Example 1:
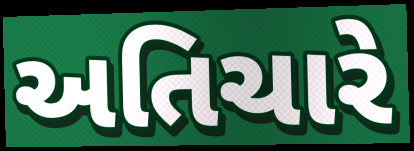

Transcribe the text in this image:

અતિચારે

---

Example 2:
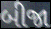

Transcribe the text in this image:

બીજા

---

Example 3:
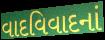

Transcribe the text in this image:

વાદવિવાદનાં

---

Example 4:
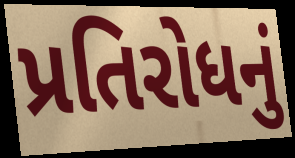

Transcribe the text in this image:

પ્રતિરોધનું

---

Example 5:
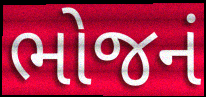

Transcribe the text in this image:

ભોજનં